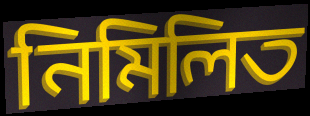
নিমিলিত